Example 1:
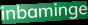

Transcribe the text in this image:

inbaminge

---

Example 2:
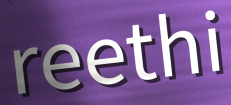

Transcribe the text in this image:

reethi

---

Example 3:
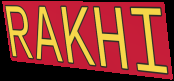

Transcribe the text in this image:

RAKHI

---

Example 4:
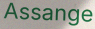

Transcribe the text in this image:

Assange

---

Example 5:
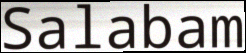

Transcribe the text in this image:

Salabam